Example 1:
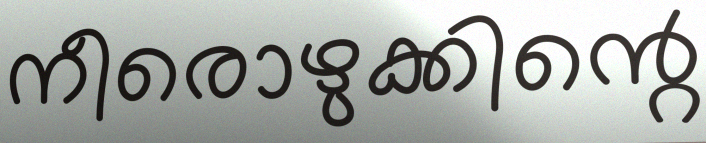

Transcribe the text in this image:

നീരൊഴുക്കിന്റെ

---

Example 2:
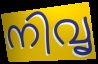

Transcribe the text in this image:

നിവൃ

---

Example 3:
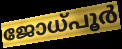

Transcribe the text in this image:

ജോധ്പൂർ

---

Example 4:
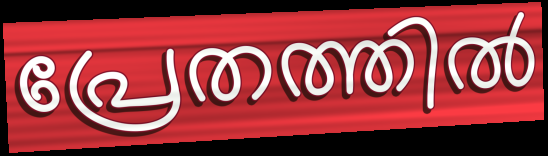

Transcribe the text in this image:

പ്രേതത്തിൽ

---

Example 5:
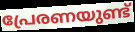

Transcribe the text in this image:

പ്രേരണയുണ്ട്